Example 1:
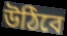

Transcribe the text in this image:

উঠিবে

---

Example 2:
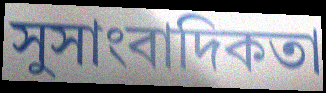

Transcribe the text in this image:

সুসাংবাদিকতা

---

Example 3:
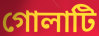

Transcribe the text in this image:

গোলাটি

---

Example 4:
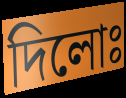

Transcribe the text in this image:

দিলোঃ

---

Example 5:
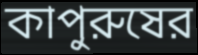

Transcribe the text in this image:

কাপুরুষের